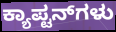
ಕ್ಯಾಪ್ಟನ್‌ಗಳು